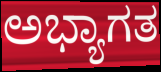
ಅಭ್ಯಾಗತ